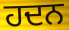
ਹਦਨ